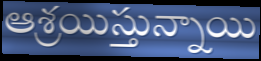
ఆశ్రయిస్తున్నాయి